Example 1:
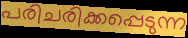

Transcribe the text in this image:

പരിചരിക്കപ്പെടുന്ന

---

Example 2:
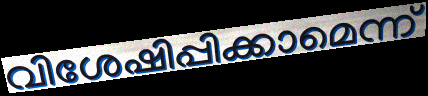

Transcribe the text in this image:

വിശേഷിപ്പിക്കാമെന്ന്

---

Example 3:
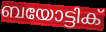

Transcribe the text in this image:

ബയോട്ടിക്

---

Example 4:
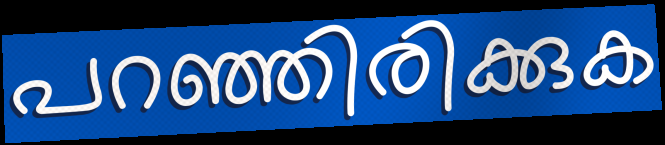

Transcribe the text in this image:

പറഞ്ഞിരിക്കുക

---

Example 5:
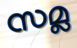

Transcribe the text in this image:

സമ്ല